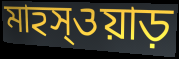
মাহস্ওয়াড়